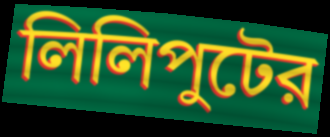
লিলিপুটের